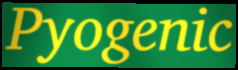
Pyogenic